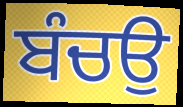
ਬੰਚਉ